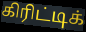
கிரிட்டிக்